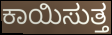
ಕಾಯಿಸುತ್ತ